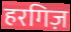
हरगिज़